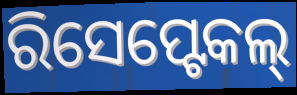
ରିସେପ୍ଟେକଲ୍